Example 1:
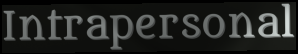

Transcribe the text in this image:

Intrapersonal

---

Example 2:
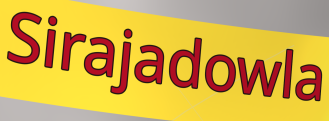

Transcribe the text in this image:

Sirajadowla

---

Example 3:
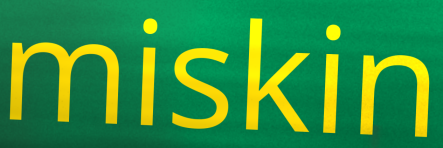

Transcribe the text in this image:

miskin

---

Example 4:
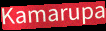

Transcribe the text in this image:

Kamarupa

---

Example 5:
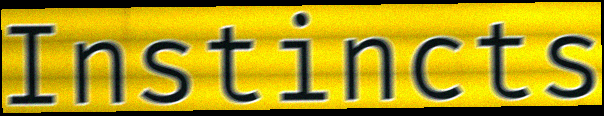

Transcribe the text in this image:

Instincts